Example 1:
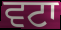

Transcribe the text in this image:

ਵਟਾ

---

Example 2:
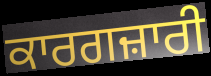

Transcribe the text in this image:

ਕਾਰਗਜ਼ਾਰੀ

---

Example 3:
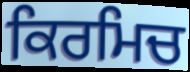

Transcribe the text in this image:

ਕਿਰਮਿਚ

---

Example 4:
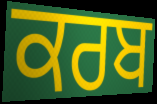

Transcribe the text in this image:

ਕਰਬ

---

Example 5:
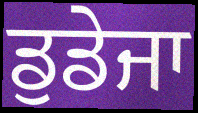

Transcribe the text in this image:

ਡੁਡੇਜਾ